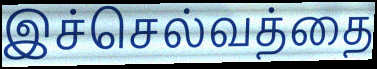
இச்செல்வத்தை